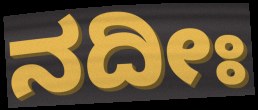
ನದೀಃ